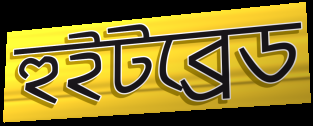
হুইটব্রেড